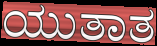
ಯುತಾತ